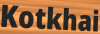
Kotkhai